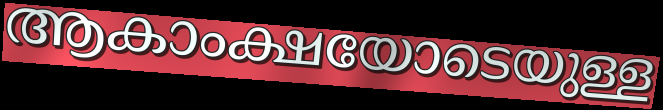
ആകാംക്ഷയോടെയുള്ള